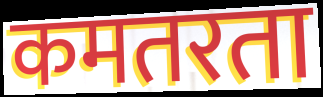
कमतरता